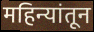
महिन्यांतून